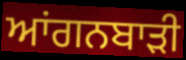
ਆਂਗਨਬਾੜੀ